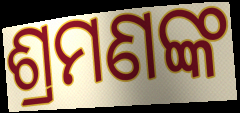
ଶ୍ରମଣଙ୍କ